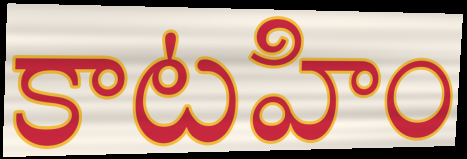
కాటహిం